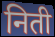
निती